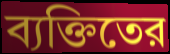
ব্যক্তিতের